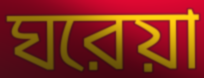
ঘরেয়া